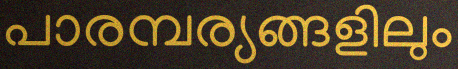
പാരമ്പര്യങ്ങളിലും